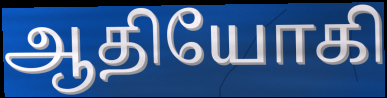
ஆதியோகி